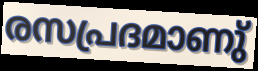
രസപ്രദമാണു്